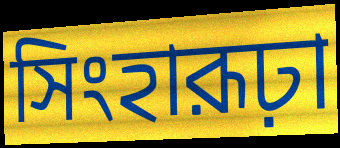
সিংহারূঢ়া